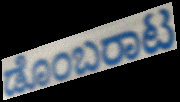
ಡೊಂಬರಾಟ